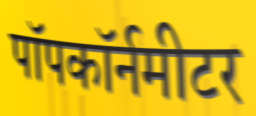
पॉपकॉर्नमीटर